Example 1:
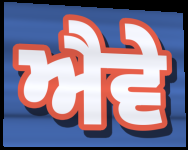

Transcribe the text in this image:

ਐਵੇ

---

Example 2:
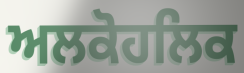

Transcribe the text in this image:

ਅਲਕੋਹਲਿਕ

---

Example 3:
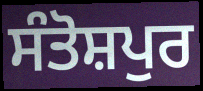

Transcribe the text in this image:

ਸੰਤੋਸ਼ਪੁਰ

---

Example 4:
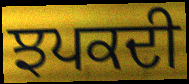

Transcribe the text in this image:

ਝਪਕਦੀ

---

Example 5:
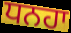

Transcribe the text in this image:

ਧਨਹਾ